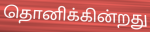
தொனிக்கின்றது